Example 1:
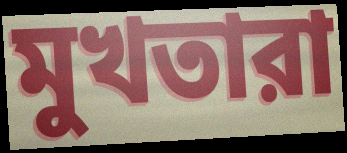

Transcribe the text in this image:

মুখতারা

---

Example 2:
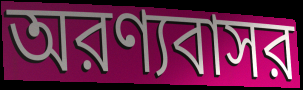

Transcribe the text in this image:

অরণ্যবাসর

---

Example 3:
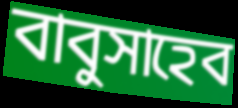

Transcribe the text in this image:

বাবুসাহেব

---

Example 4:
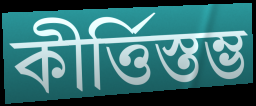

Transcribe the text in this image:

কীর্ত্তিস্তম্ভ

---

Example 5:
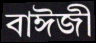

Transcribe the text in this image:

বাঈজী